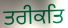
ਤਰੀਕਤਿ